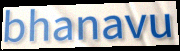
bhanavu